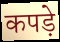
कपड़े